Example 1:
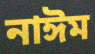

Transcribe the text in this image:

নাঈম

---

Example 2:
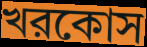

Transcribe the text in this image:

খরকোস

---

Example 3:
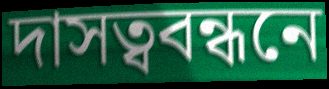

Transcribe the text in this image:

দাসত্ববন্ধনে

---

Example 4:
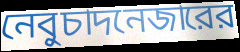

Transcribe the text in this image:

নেবুচাদনেজারের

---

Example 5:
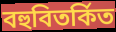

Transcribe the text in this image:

বহুবিতর্কিত